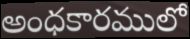
అంధకారములో